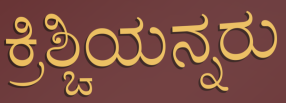
ಕ್ರಿಶ್ಚಿಯನ್ನರು